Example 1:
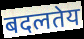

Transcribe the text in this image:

बदलतेय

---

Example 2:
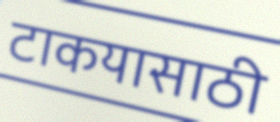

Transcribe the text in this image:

टाकयासाठी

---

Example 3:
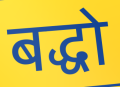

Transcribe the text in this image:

बद्धो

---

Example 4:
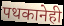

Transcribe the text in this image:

पथकानेही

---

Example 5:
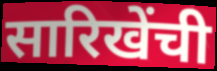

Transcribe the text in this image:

सारिखेंची